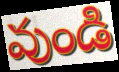
వుండి